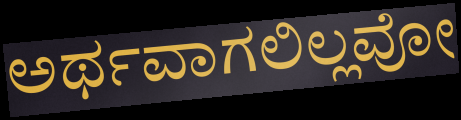
ಅರ್ಥವಾಗಲಿಲ್ಲವೋ